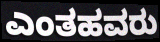
ಎಂತಹವರು